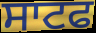
ਸਾਟਫ